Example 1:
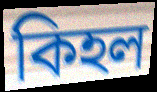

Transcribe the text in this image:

কিহল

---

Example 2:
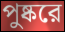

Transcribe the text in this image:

পুষ্করে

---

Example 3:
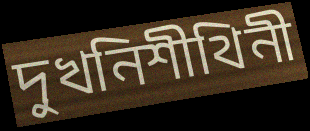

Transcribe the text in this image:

দুখনিশীথিনী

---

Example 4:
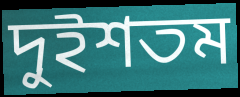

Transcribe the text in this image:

দুইশতম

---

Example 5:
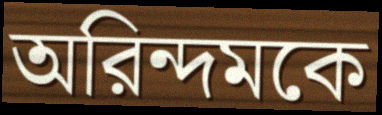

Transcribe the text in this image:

অরিন্দমকে